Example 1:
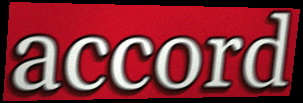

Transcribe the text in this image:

accord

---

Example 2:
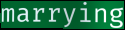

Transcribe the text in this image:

marrying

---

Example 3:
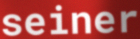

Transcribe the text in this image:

seiner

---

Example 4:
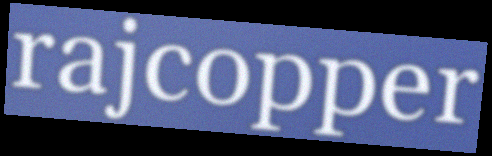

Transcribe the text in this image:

rajcopper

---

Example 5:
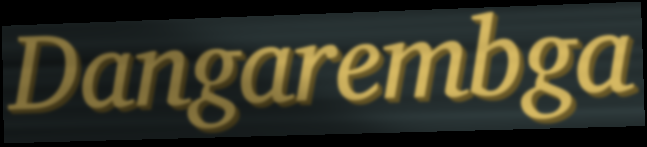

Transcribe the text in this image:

Dangarembga